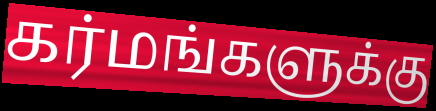
கர்மங்களுக்கு